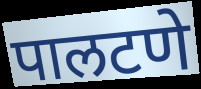
पालटणे